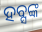
ହବ୍ସଙ୍କ